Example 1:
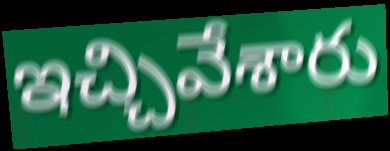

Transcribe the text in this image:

ఇచ్చివేశారు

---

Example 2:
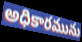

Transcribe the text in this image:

అధికారమును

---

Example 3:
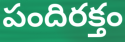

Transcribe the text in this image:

పందిరక్తం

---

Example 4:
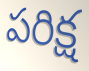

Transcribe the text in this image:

పరిక్ష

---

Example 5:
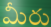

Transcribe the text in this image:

మీరు